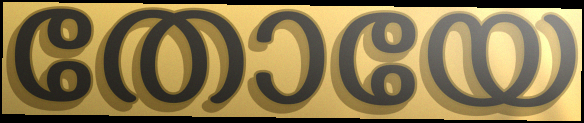
തോയേ